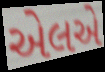
એલએ